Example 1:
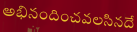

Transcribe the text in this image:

అభినందించవలసినదే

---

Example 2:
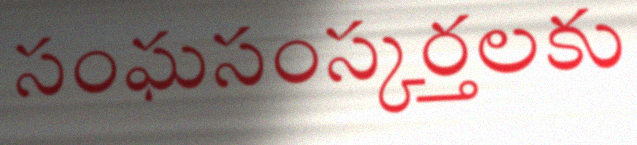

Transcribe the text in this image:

సంఘసంస్కర్తలకు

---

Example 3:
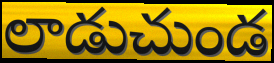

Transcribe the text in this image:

లాడుచుండ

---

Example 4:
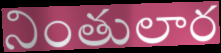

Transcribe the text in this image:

నింతులార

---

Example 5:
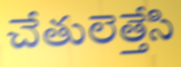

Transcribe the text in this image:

చేతులెత్తేసి